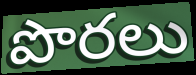
పొరలు